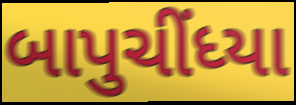
બાપુચીંધ્યા